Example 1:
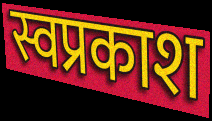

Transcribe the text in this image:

स्वप्रकाश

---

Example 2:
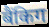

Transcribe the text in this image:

बैंकिग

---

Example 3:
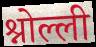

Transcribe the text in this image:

श्नोल्ली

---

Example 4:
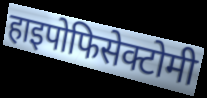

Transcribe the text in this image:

हाइपोफिसेक्टोमी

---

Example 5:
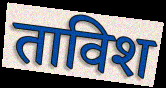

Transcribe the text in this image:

ताविश